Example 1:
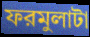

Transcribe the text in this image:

ফরমুলাটা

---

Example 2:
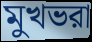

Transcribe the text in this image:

মুখভরা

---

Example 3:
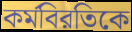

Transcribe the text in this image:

কর্মবিরতিকে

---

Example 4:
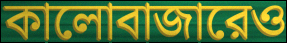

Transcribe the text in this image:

কালোবাজারেও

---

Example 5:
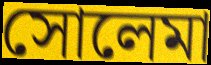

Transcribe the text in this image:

সোলেমা